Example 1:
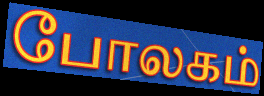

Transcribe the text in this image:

போலகம்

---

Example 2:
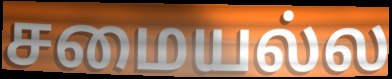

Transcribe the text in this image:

சமையல்ல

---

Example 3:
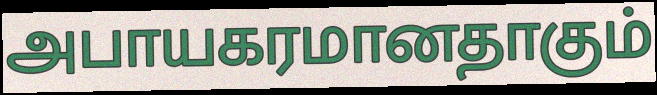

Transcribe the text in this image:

அபாயகரமானதாகும்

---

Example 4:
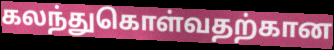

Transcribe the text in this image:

கலந்துகொள்வதற்கான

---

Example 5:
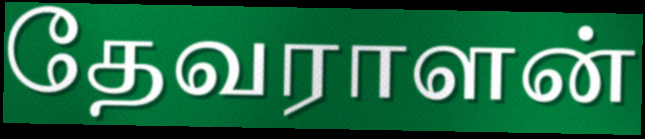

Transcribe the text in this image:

தேவராளன்